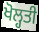
ਖੋਲ੍ਹਤੀ